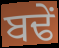
ਬਢੇਂ